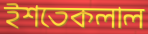
ইশতেকলাল